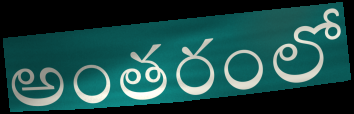
అంతరంలో